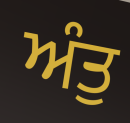
ਅੰਤੁ